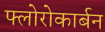
फ्लोरोकार्बन